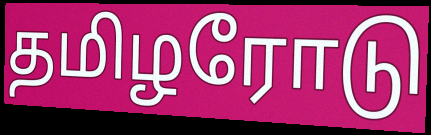
தமிழரோடு